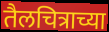
तैलचित्राच्या